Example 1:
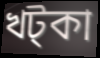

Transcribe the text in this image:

খট্‌কা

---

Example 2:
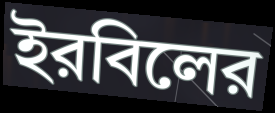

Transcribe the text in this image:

ইরবিলের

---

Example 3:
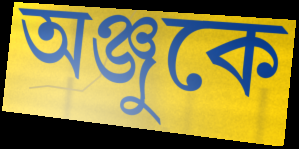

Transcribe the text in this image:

অঞ্জুকে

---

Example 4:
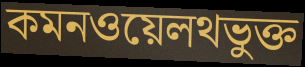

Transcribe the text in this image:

কমনওয়েলথভুক্ত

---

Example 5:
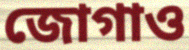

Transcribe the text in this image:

জোগাও